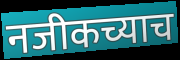
नजीकच्याच